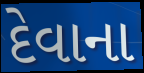
દેવાના